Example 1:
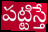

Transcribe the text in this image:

పట్టిస్తే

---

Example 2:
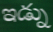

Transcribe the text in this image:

ఇడ్ను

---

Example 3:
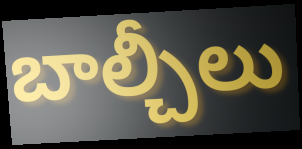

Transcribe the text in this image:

బాల్చీలు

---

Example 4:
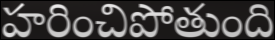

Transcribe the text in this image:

హరించిపోతుంది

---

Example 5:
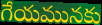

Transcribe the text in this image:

గేయమునకు